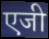
एजी